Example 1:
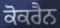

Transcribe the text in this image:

ਕੋਕਰੈਨ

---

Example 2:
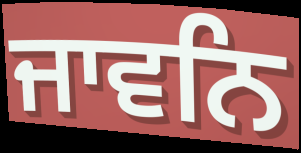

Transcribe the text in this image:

ਜਾਵਨਿ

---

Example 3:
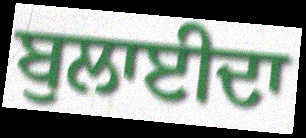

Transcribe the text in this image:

ਬੁਲਾਈਦਾ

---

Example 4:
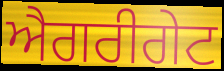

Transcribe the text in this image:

ਐਗਰੀਗੇਟ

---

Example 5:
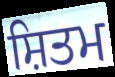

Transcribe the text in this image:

ਸ਼ਿਤਮ